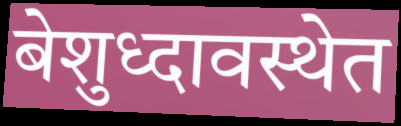
बेशुध्दावस्थेत